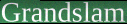
Grandslam